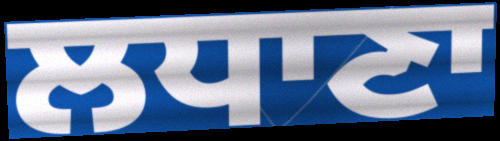
ਲਧਾਣਾ